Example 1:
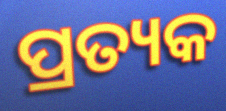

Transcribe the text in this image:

ପ୍ରତ୍ୟକ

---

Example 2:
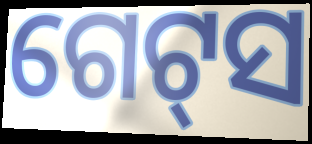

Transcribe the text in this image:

ଗେଟ୍‌ସ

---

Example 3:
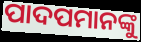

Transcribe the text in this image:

ପାଦପମାନଙ୍କୁ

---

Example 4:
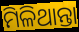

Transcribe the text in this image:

ମିଳିଥାନ୍ତା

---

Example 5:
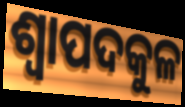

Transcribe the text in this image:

ଶ୍ୱାପଦକୁଳ